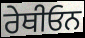
ਰੇਥੀਓਨ